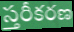
స్తరీకరణ